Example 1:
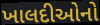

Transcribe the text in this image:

ખાલદીઓનો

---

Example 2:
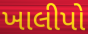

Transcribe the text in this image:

ખાલીપો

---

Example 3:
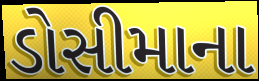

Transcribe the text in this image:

ડોસીમાના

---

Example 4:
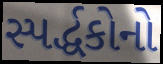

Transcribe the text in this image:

સ્પર્દ્ધકોનો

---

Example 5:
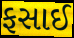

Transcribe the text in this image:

ફસાઈ